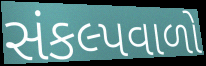
સંકલ્પવાળો